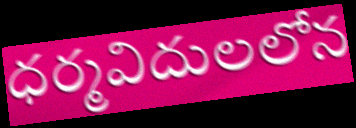
ధర్మవిదులలోన